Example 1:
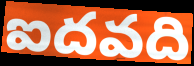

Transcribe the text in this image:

ఐదవది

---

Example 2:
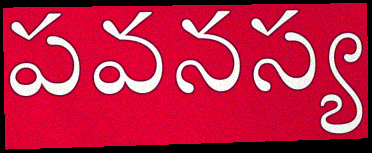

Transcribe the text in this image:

పవనస్య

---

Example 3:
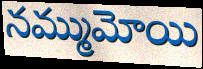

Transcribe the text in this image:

నమ్ముమోయి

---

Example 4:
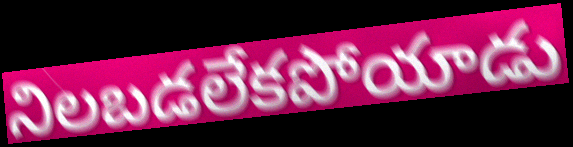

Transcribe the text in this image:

నిలబడలేకపోయాడు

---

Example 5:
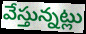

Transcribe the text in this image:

వేస్తున్నట్లు